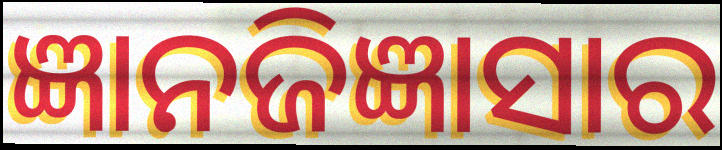
ଜ୍ଞାନଜିଜ୍ଞାସାର